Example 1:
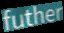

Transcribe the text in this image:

futher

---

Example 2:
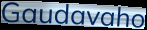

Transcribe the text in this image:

Gaudavaho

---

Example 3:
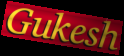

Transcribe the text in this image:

Gukesh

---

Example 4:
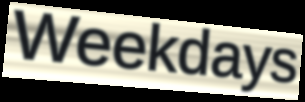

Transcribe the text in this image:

Weekdays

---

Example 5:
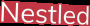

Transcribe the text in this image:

Nestled